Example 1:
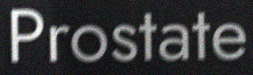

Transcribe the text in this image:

Prostate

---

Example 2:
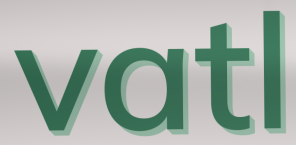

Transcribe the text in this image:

vatl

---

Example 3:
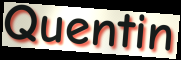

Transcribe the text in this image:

Quentin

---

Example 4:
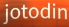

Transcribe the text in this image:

jotodin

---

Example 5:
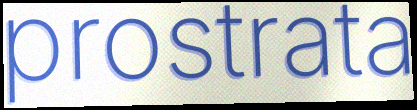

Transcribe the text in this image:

prostrata